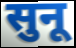
सुनू